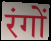
रंगों